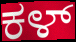
ಕಳ್